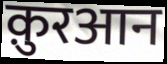
क़ुरआन